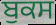
ਬੁਕਸ